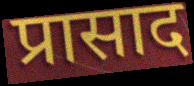
प्रासाद